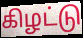
கிழட்டு